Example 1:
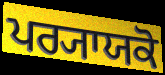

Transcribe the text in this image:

ਪਰ੍ਯਾਯਕੋ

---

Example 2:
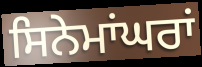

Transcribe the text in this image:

ਸਿਨੇਮਾਂਘਰਾਂ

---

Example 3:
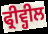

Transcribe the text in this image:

ਫ੍ਰੀਵ੍ਹੀਲ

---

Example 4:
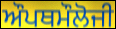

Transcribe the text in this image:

ਔਪਥਮੌਲੋਜੀ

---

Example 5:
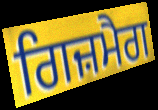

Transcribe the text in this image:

ਗਿਜ਼ਮੈਗ